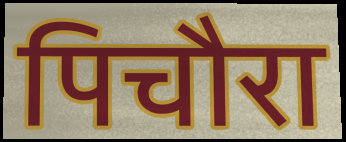
पिचौरा